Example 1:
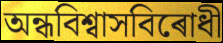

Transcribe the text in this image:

অন্ধবিশ্বাসবিৰোধী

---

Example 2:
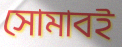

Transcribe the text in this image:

সোমাবই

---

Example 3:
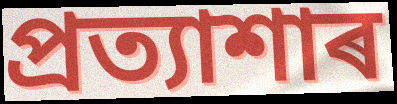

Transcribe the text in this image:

প্ৰত্যাশাৰ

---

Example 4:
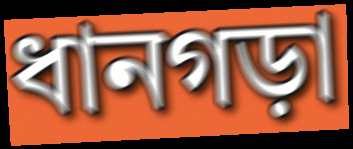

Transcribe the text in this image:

ধানগড়া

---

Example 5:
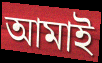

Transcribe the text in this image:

আমাই